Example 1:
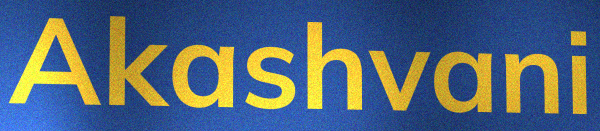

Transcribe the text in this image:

Akashvani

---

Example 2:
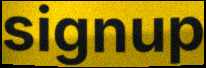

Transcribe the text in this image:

signup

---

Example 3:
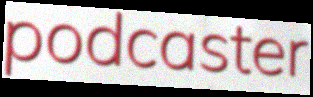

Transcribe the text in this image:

podcaster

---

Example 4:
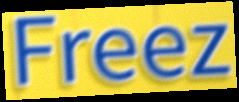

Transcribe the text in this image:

Freez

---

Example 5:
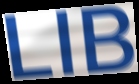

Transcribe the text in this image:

LIB